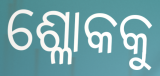
ଶ୍ଳୋକକୁ